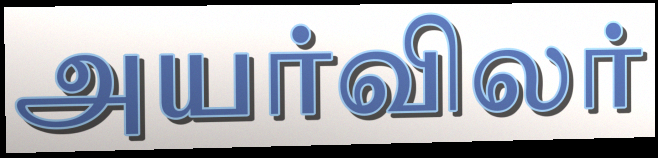
அயர்விலர்